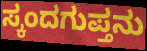
ಸ್ಕಂದಗುಪ್ತನು